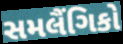
સમલૈંગિકો